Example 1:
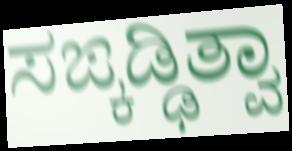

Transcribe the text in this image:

ಸಙ್ಕಡ್ಢಿತ್ವಾ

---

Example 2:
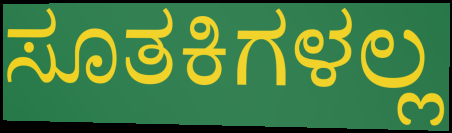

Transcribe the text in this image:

ಸೂತಕಿಗಳಲ್ಲ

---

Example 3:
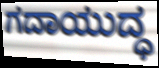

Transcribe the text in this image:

ಗದಾಯುದ್ಧ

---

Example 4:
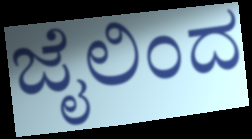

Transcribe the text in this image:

ಜೈಲಿಂದ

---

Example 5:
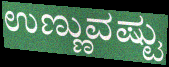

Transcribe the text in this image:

ಉಣ್ಣುವಷ್ಟು